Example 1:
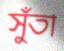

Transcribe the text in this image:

সুঁতা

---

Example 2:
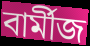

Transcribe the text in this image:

বাৰ্মীজ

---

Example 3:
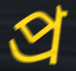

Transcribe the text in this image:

প্ৰ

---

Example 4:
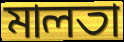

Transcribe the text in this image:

মালতা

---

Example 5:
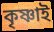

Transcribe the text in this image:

কৃষ্ণাই